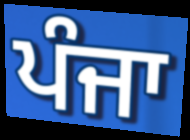
ਪੰਜਾ